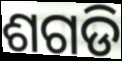
ଶଗଡି